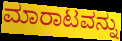
ಮಾರಾಟವನ್ನು